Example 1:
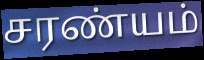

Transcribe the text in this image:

சரண்யம்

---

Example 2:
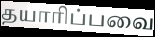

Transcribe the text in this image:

தயாரிப்பவை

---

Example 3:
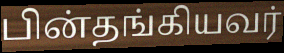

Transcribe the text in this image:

பின்தங்கியவர்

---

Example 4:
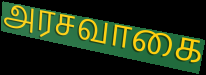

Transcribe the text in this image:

அரசவாகை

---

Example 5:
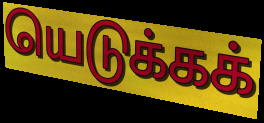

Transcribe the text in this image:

யெடுக்கக்